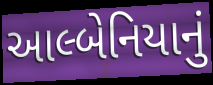
આલ્બેનિયાનું